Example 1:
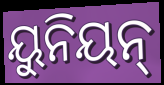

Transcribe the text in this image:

ୟୁନିୟନ୍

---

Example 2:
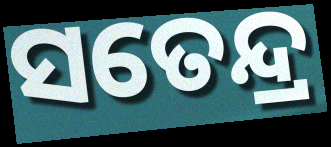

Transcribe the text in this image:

ସତେନ୍ଦ୍ର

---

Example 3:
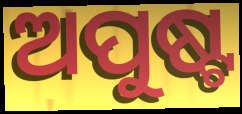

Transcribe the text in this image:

ଅପୁଷ୍ଟ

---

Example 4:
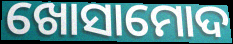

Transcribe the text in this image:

ଖୋସାମୋଦ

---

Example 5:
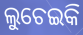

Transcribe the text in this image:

ଲୁଚେଇକି